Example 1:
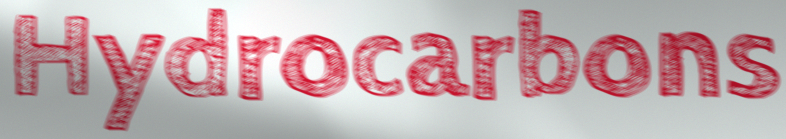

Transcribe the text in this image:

Hydrocarbons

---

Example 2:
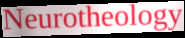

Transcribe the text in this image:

Neurotheology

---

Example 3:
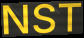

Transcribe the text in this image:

NST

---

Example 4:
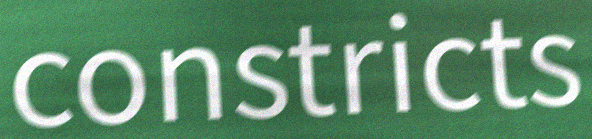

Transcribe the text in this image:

constricts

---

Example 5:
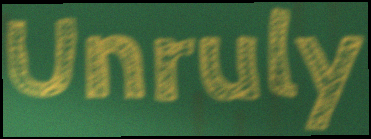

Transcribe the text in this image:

Unruly